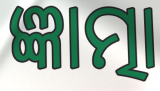
ଜ୍ଞାତ୍ମା